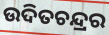
ଉଦିତଚନ୍ଦ୍ରର